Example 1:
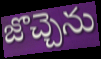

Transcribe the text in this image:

జొచ్చెను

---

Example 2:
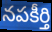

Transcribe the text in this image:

నపకీర్తి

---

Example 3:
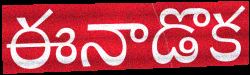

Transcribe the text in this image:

ఈనాడొక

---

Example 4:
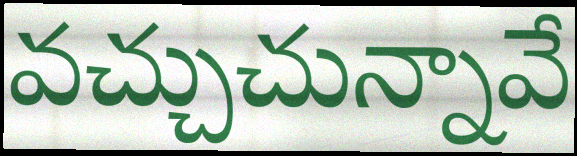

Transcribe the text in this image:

వచ్చుచున్నావే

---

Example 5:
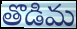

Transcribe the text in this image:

తొడిమ